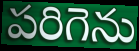
పరిగెను